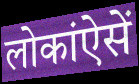
लोकांऐसें